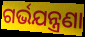
ଗର୍ଭଯନ୍ତ୍ରଣା